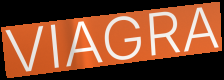
VIAGRA